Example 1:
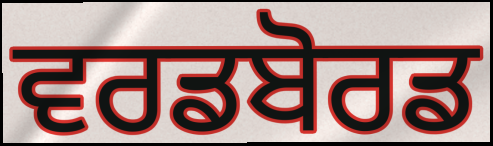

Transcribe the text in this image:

ਵਰਡਬੋਰਡ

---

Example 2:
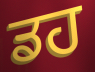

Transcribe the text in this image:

ਡਹ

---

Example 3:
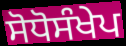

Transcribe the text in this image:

ਸੋਧੋਸੰਖੇਪ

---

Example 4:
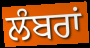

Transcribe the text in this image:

ਲੰਬਰਾਂ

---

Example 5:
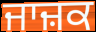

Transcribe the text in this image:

ਜਾਜ਼ਕ